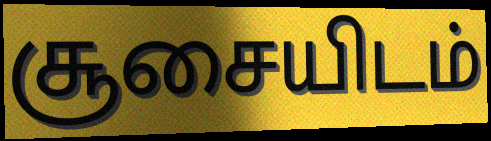
சூசையிடம்